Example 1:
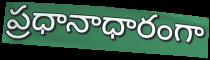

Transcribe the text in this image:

ప్రధానాధారంగా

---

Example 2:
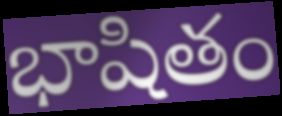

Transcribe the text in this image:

భాషితం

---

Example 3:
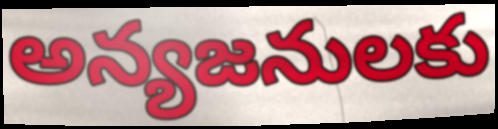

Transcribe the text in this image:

అన్యజనులకు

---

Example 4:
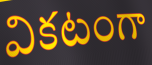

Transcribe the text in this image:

వికటంగా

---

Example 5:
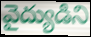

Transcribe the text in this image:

వైద్యుడిని